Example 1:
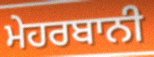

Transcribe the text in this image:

ਮੇਹਰਬਾਨੀ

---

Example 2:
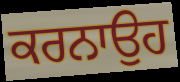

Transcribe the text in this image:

ਕਰਨਾਉਹ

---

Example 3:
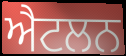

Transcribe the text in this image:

ਐਟਲਨ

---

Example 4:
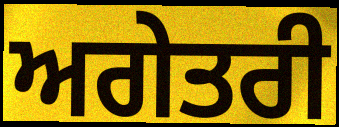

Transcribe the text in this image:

ਅਗੇਤਰੀ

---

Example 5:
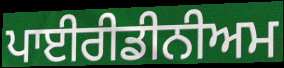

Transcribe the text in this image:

ਪਾਈਰੀਡੀਨੀਅਮ